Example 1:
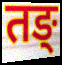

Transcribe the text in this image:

तङ्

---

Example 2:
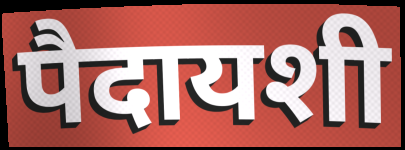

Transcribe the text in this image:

पैदायशी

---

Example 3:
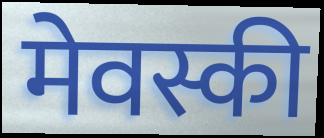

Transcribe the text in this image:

मेवस्की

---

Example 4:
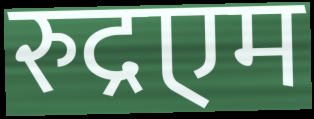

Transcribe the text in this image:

रुद्रएम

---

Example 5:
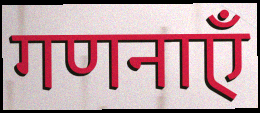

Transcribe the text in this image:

गणनाएँ